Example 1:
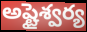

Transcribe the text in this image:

అష్టైశ్వర్య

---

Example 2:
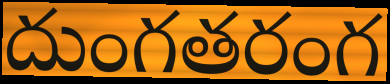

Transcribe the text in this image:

దుంగతరంగ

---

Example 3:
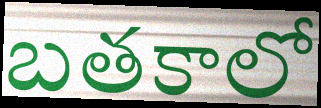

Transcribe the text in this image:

బతకాలో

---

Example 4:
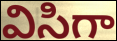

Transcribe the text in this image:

విసిగా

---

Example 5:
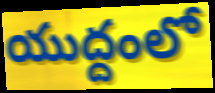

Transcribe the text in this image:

యుద్దంలో